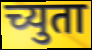
च्युता